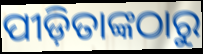
ପୀଡ଼ିତାଙ୍କଠାରୁ